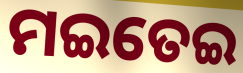
ମଇତେଇ